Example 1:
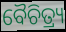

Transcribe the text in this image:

ବୈଚିତ୍ର୍ୟ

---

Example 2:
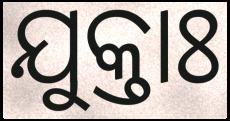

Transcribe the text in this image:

ଯୁକ୍ତାଃ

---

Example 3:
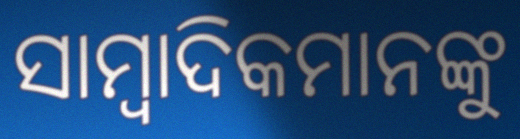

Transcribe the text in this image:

ସାମ୍ବାଦିକମାନଙ୍କୁ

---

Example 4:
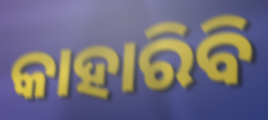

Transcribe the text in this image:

କାହାରିବି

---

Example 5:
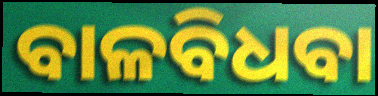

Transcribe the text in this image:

ବାଳବିଧବା